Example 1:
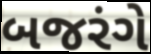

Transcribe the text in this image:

બજરંગે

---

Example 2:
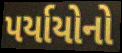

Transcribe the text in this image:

પર્યાયોનો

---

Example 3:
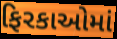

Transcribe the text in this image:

ફિરકાઓમાં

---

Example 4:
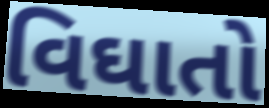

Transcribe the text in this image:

વિઘાતો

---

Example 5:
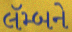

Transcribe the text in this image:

લૅમ્બને